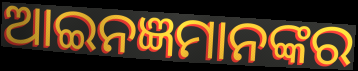
ଆଇନଜ୍ଞମାନଙ୍କର